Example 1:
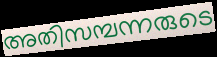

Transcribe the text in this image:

അതിസമ്പന്നരുടെ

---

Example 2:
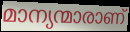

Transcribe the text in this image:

മാന്യന്മാരാണ്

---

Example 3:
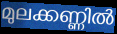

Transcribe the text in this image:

മുലക്കണ്ണിൽ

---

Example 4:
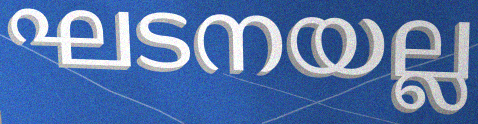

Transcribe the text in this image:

ഘടനയല്ല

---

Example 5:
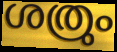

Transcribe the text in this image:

ശത്രും